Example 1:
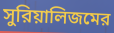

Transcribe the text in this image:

সুরিয়ালিজমের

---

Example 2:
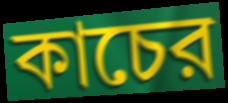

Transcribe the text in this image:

কাচের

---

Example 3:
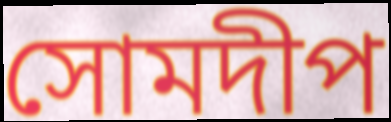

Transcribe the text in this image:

সোমদীপ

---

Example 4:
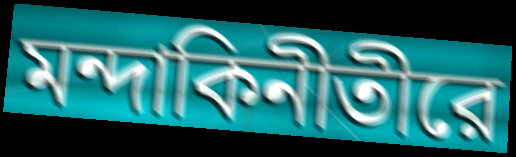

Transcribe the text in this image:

মন্দাকিনীতীরে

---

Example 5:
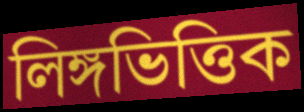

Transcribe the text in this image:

লিঙ্গভিত্তিক